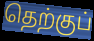
தெற்குப்